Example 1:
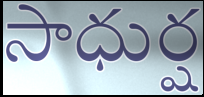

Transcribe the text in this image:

సాధుర్ష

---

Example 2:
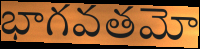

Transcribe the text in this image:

భాగవతమో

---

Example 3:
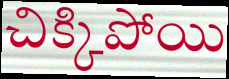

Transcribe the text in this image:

చిక్కిపోయి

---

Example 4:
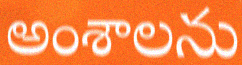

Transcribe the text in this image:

అంశాలను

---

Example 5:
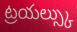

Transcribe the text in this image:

ట్రయల్స్కు